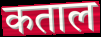
कताल